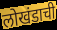
लोखंडाची